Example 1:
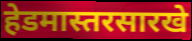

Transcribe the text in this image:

हेडमास्तरसारखे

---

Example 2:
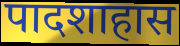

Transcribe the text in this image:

पादशाहास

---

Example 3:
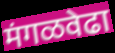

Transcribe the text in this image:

मंगळवेढा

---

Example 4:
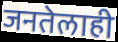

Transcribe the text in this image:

जनतेलाही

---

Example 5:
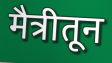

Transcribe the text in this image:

मैत्रीतून